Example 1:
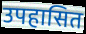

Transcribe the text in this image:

उपहासित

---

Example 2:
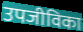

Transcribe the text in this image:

उपजीविका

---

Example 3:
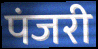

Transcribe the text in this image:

पंजरी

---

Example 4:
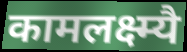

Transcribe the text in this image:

कामलक्ष्म्यै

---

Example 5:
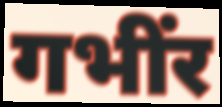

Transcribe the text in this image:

गभींर